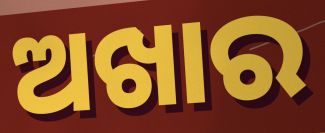
ଅଖାର